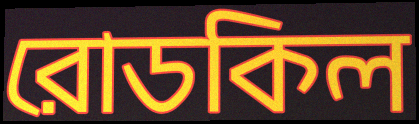
রোডকিল